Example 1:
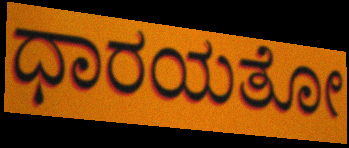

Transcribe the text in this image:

ಧಾರಯತೋ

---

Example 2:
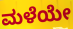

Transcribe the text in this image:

ಮಳೆಯೇ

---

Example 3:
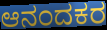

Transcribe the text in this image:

ಆನಂದಕರ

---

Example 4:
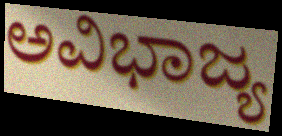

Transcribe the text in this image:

ಅವಿಭಾಜ್ಯ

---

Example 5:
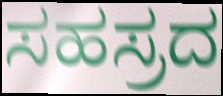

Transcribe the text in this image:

ಸಹಸ್ರದ